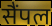
सैंपल